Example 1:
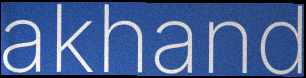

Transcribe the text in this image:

akhand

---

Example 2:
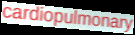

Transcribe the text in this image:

cardiopulmonary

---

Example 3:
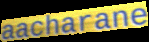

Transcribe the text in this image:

aacharane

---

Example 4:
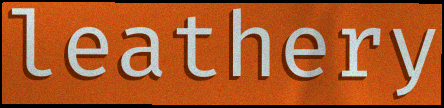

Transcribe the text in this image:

leathery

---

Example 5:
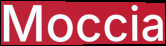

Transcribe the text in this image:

Moccia